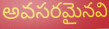
అవసరమైనవి